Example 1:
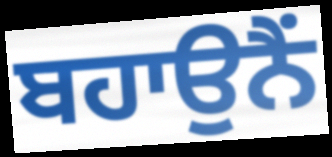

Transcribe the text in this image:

ਬਹਾਉਨੈਂ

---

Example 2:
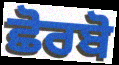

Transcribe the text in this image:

ਛੋਰਬੋ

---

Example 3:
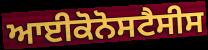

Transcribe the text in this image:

ਆਈਕੋਨੋਸਟੈਸੀਸ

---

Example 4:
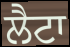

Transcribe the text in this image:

ਲੈਟਾ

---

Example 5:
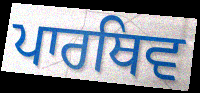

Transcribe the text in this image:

ਪਾਰਥਿਵ